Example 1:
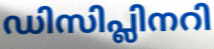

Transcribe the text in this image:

ഡിസിപ്ലിനറി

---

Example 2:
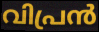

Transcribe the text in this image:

വിപ്രൻ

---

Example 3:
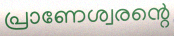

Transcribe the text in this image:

പ്രാണേശ്വരന്റെ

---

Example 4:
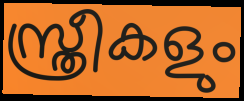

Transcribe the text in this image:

സ്ത്രീകളും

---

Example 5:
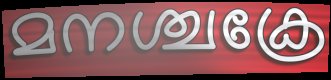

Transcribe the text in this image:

മനശ്ചക്രേ